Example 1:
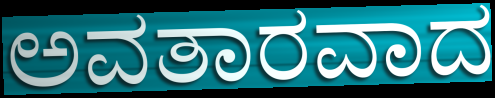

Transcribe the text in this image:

ಅವತಾರವಾದ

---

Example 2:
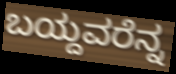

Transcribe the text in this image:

ಬಯ್ದವರೆನ್ನ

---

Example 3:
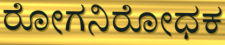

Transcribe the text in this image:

ರೋಗನಿರೋಧಕ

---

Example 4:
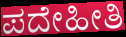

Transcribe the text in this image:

ಪದೇಹೀತಿ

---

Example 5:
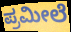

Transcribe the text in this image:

ಪ್ರಮೀಲೆ